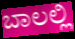
ಬಾಲಲ್ಲಿ